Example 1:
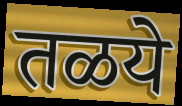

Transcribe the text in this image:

तळये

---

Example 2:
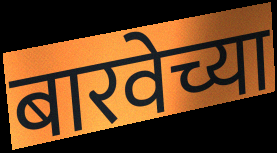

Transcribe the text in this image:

बारवेच्या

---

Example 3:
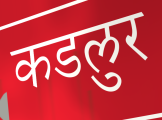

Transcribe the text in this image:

कडलुर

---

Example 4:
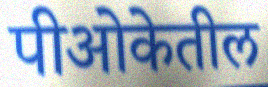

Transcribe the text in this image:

पीओकेतील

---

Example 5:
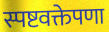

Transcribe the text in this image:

स्पष्टवक्तेपणा